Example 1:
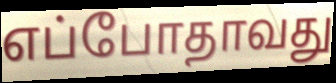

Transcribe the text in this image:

எப்போதாவது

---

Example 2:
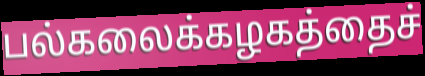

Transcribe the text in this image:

பல்கலைக்கழகத்தைச்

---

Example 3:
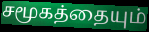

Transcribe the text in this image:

சமூகத்தையும்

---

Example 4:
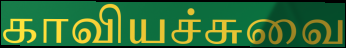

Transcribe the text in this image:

காவியச்சுவை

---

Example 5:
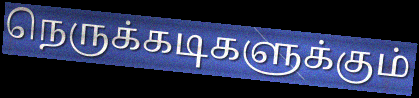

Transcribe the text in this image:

நெருக்கடிகளுக்கும்